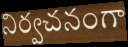
నిర్వచనంగా